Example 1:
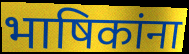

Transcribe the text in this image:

भाषिकांना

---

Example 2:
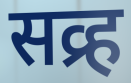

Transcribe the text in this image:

सव्र्ह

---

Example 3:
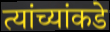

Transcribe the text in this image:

त्यांच्यांकडे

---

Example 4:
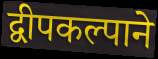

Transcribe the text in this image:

द्वीपकल्पाने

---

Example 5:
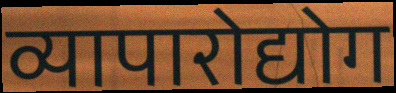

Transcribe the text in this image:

व्यापारोद्योग